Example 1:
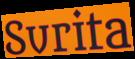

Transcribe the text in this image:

Surita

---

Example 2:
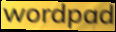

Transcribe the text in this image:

wordpad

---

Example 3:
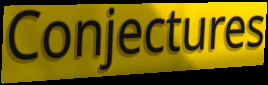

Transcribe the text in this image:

Conjectures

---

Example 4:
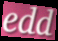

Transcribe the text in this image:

edd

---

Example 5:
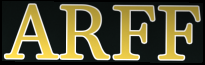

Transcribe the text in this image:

ARFF